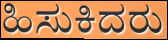
ಹಿಸುಕಿದರು